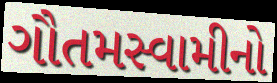
ગૌતમસ્વામીનો